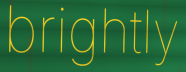
brightly